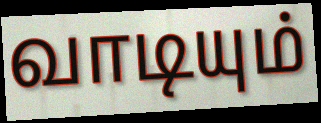
வாடியும்